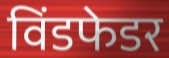
विंडफेडर